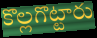
కొల్లగొట్టారు